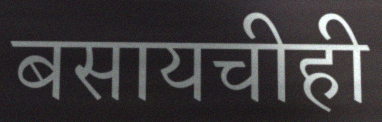
बसायचीही